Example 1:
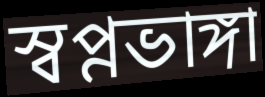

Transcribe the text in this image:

স্বপ্নভাঙ্গা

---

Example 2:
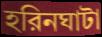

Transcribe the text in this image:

হরিনঘাটা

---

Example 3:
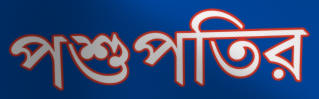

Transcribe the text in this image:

পশুপতির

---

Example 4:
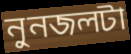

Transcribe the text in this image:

নুনজলটা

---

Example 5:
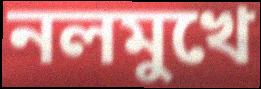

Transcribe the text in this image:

নলমুখে